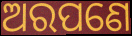
ଅରପଣେ